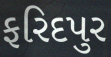
ફરિદપુર